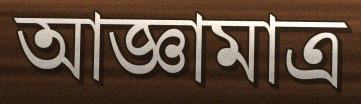
আজ্ঞামাত্র